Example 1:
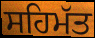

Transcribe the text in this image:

ਸਹਿਮੱਤ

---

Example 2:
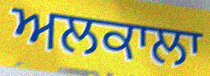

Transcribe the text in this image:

ਅਲਕਾਲਾ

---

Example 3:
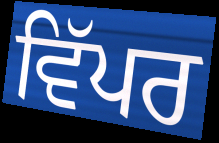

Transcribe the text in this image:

ਵਿੱਪਰ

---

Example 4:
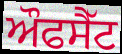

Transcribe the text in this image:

ਔਫਸੈੱਟ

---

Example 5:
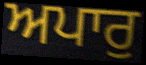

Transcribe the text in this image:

ਅਪਾਰੁ